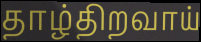
தாழ்திறவாய்